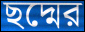
ছদ্মের